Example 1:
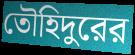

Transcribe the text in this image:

তৌহিদুরের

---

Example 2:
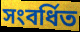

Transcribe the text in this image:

সংবর্ধিত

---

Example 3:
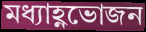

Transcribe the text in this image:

মধ্যাহ্ণভোজন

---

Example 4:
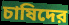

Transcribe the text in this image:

চাষিদের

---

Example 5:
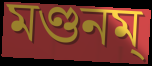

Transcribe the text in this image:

মণ্ডনম্